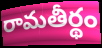
రామతీర్థం